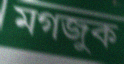
মগজুক